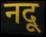
नदू